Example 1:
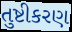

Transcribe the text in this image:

તુષ્ટીકરણ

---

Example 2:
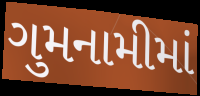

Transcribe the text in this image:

ગુમનામીમાં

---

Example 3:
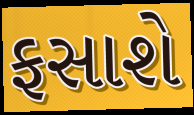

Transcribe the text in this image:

ફસાશે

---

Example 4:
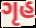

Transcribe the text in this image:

ગૃહ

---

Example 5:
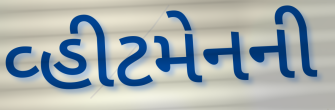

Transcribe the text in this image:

વ્હીટમેનની